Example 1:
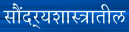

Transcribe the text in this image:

सौंदर्यशास्त्रातील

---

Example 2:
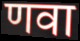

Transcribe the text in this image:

णवा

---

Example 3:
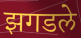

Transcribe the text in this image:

झगडले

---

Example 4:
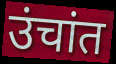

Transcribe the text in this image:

उंचांत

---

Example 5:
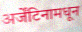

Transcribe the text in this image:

अर्जेंटिनामधून